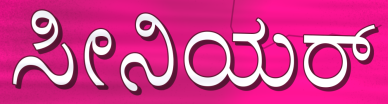
ಸೀನಿಯರ್